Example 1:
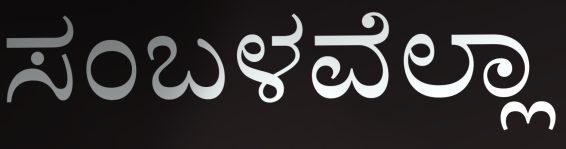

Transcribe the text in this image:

ಸಂಬಳವೆಲ್ಲಾ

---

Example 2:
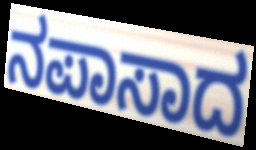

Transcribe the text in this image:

ನಪಾಸಾದ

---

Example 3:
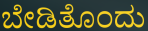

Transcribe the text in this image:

ಬೇಡಿತೊಂದು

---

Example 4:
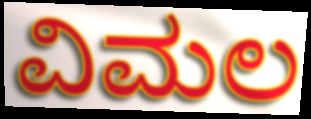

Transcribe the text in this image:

ವಿಮಲ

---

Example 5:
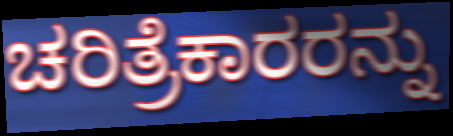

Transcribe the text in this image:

ಚರಿತ್ರೆಕಾರರನ್ನು